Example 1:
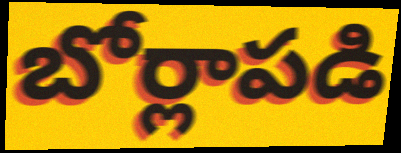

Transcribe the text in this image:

బోర్లాపడి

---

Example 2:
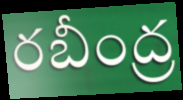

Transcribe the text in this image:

రబీంద్ర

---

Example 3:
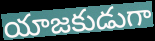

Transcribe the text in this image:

యాజకుడుగా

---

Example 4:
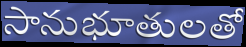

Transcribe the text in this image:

సానుభూతులతో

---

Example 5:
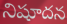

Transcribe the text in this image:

నిషూదన